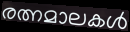
രത്നമാലകൾ